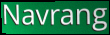
Navrang